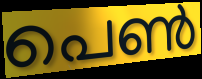
പെൺ